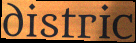
distric